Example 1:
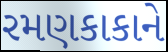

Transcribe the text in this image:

રમણકાકાને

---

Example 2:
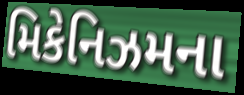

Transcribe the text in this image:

મિકેનિઝમના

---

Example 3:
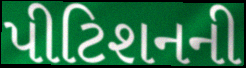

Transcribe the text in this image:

પીટિશનની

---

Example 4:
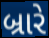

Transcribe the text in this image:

બ્રારે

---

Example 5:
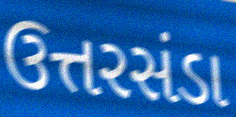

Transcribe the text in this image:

ઉત્તરસંડા